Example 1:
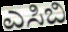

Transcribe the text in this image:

ಎಸಿಬಿ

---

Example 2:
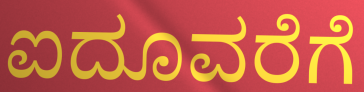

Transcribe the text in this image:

ಐದೂವರೆಗೆ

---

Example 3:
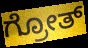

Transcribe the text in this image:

ಗ್ರೋತ್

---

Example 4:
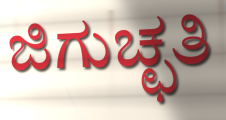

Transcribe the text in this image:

ಜಿಗುಚ್ಛತಿ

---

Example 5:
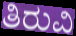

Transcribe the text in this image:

ತಿರುವಿ